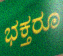
ಭಕ್ತರೂ